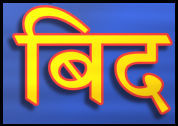
बिद